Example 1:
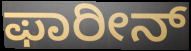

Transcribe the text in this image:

ಫಾರೀನ್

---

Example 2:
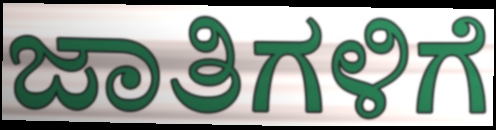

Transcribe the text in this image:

ಜಾತಿಗಳಿಗೆ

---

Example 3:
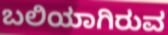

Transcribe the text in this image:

ಬಲಿಯಾಗಿರುವ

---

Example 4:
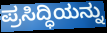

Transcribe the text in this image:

ಪ್ರಸಿದ್ಧಿಯನ್ನು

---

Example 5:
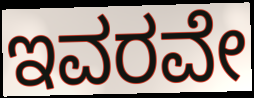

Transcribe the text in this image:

ಇವರವೇ